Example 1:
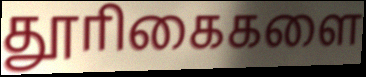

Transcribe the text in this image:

தூரிகைகளை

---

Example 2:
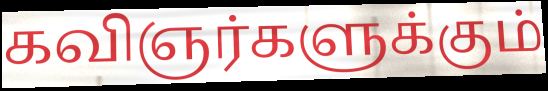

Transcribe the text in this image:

கவிஞர்களுக்கும்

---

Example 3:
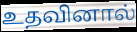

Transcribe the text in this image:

உதவினால்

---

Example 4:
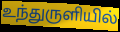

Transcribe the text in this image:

உந்துருளியில்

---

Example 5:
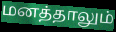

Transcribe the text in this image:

மனத்தாலும்